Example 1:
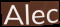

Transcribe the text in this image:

Alec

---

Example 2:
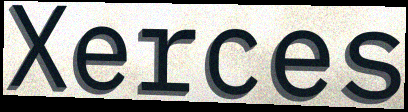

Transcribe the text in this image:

Xerces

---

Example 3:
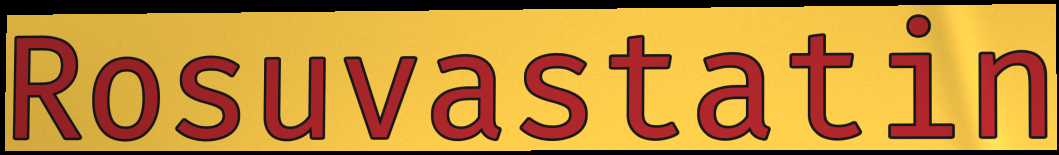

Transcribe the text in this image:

Rosuvastatin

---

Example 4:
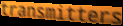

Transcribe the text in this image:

transmitters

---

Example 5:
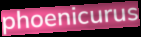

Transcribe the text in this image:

phoenicurus